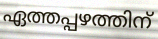
ഏത്തപ്പഴത്തിന്